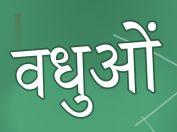
वधुओं